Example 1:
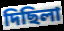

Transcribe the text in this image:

দিছিলা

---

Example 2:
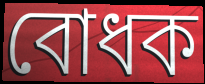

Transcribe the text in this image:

বোধক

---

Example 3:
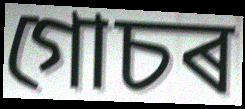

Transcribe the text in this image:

গোচৰ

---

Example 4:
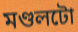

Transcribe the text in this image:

মণ্ডলটো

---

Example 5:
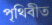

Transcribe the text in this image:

পৃথিবীত